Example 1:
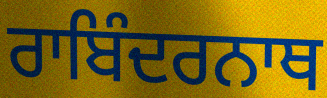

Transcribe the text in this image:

ਰਾਬਿੰਦਰਨਾਥ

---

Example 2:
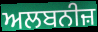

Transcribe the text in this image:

ਅਲਬਨੀਜ਼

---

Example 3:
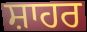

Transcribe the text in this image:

ਸ਼ਾਹਰ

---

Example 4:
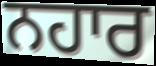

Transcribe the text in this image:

ਨਹਾਰ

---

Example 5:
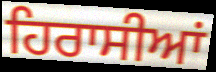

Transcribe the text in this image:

ਹਿਰਾਸੀਆਂ